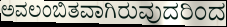
ಅವಲಂಬಿತವಾಗಿರುವುದರಿಂದ